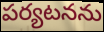
పర్యటనను